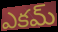
ఎకమ్